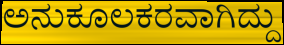
ಅನುಕೂಲಕರವಾಗಿದ್ದು